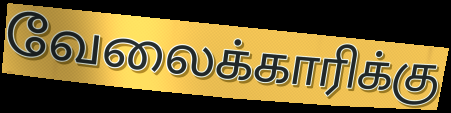
வேலைக்காரிக்கு